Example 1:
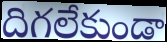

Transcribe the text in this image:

దిగలేకుండా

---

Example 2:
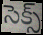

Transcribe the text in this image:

సెక్స్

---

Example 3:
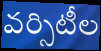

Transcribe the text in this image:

వర్సిటీల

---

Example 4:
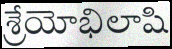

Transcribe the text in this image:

శ్రేయోభిలాషి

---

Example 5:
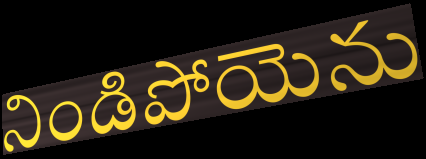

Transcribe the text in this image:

నిండిపోయెను